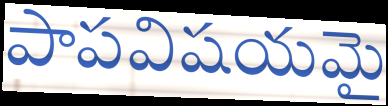
పాపవిషయమై